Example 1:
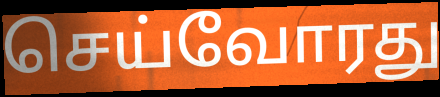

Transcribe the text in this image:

செய்வோரது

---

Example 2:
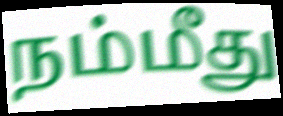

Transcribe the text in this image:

நம்மீது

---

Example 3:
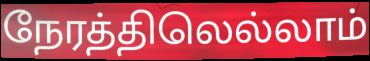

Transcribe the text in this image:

நேரத்திலெல்லாம்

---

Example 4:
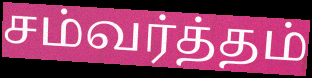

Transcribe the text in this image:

சம்வர்த்தம்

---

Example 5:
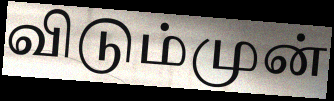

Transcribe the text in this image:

விடும்முன்